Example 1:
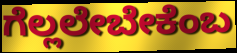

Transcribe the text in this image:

ಗೆಲ್ಲಲೇಬೇಕೆಂಬ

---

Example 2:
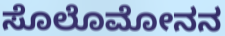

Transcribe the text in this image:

ಸೊಲೊಮೋನನ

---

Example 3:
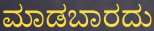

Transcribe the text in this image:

ಮಾಡಬಾರದು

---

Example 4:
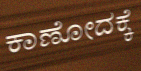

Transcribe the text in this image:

ಕಾಣೋದಕ್ಕೆ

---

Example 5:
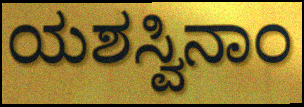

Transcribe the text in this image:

ಯಶಸ್ವಿನಾಂ